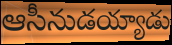
ఆసీనుడయ్యాడు